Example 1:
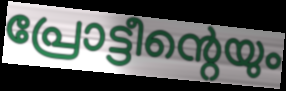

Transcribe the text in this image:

പ്രോട്ടീന്റെയും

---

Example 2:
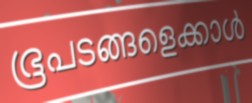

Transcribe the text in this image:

ഭൂപടങ്ങളെക്കാൾ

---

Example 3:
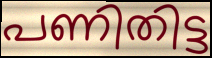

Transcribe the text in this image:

പണിതിട്ട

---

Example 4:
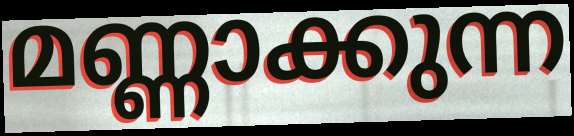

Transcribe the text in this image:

മണ്ണാക്കുന്ന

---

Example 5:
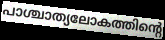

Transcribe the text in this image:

പാശ്ചാത്യലോകത്തിന്റെ